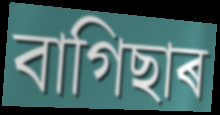
বাগিছাৰ